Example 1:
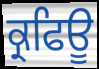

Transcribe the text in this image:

ਕ੍ਰਫਿਊ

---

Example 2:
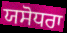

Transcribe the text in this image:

ਯਸੋਧਰਾ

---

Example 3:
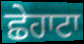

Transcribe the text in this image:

ਛੇਹਾਟਾ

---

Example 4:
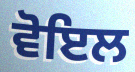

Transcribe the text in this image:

ਵੋਇਲ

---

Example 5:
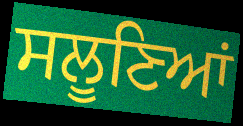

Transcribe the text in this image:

ਸਲੂਣਿਆਂ